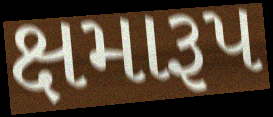
ક્ષમારૂપ